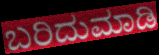
ಬರಿದುಮಾಡಿ